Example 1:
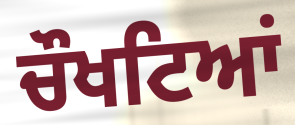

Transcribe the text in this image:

ਚੌਖਟਿਆਂ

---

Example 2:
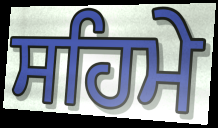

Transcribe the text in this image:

ਸਹਿਮੇ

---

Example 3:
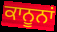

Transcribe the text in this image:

ਕਾਨੂਨਾਂ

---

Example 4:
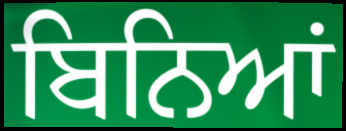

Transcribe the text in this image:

ਬਿਨਿਆਂ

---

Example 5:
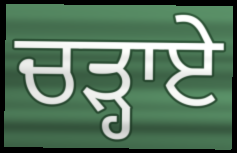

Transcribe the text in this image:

ਚੜ੍ਹਾਏ